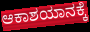
ಆಕಾಶಯಾನಕ್ಕೆ